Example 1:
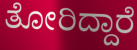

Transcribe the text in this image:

ತೋರಿದ್ದಾರೆ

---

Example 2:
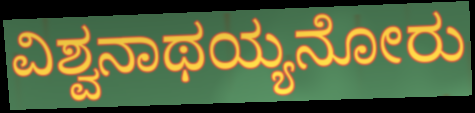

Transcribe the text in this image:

ವಿಶ್ವನಾಥಯ್ಯನೋರು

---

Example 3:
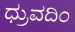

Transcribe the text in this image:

ಧ್ರುವದಿಂ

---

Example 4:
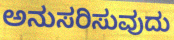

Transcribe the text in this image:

ಅನುಸರಿಸುವುದು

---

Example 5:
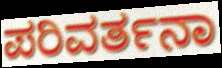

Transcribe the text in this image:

ಪರಿವರ್ತನಾ